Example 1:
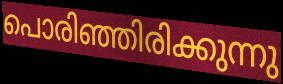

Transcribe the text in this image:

പൊരിഞ്ഞിരിക്കുന്നു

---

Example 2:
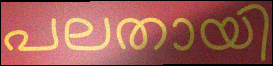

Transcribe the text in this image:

പലതായി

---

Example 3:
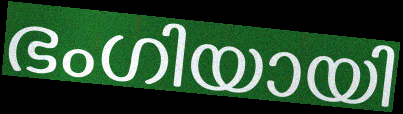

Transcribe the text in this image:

ഭംഗിയായി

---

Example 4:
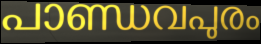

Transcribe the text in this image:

പാണ്ഡവപുരം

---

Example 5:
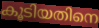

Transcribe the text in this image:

കൂടിയതിനെ